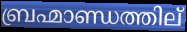
ബ്രഹ്മാണ്ഡത്തില്